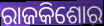
ରାଜକିଶୋର